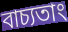
বাচ্যতাং